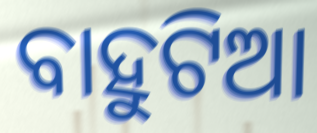
ବାହୁଟିଆ